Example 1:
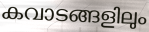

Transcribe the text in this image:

കവാടങ്ങളിലും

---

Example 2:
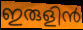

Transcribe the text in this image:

ഇരുളിൻ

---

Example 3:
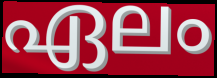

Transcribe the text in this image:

ഏലം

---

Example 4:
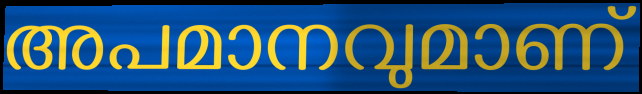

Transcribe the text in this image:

അപമാനവുമാണ്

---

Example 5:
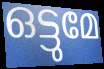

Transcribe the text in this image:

ഒട്ടുമേ